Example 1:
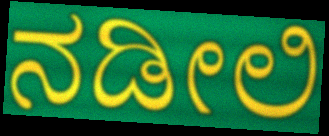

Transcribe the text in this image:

ನಡೀಲಿ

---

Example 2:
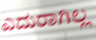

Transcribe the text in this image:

ಎದುರಾಗಿಲ್ಲ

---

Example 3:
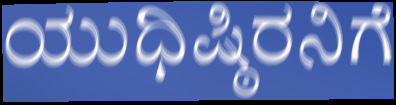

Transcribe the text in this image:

ಯುಧಿಷ್ಠಿರನಿಗೆ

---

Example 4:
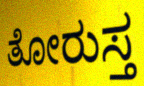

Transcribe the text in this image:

ತೋರುಸ್ತ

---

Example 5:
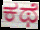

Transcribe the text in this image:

ಕಥೆ